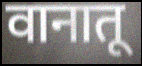
वानातू